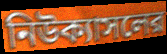
নিউক্যাসলের